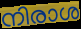
നിരാശ